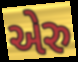
એરુ